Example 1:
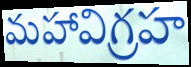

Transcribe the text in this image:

మహావిగ్రహ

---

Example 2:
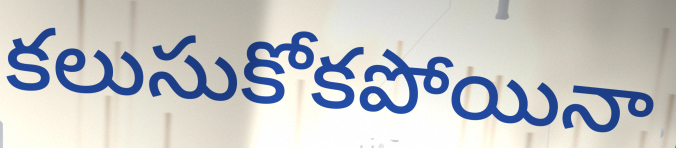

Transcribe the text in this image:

కలుసుకోకపోయినా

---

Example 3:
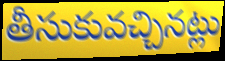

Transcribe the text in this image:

తీసుకువచ్చినట్లు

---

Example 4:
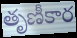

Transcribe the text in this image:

తృణీకార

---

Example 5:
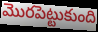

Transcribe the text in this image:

మొరపెట్టుకుంది